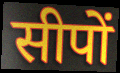
सीपों